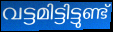
വട്ടമിട്ടിട്ടുണ്ട്